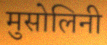
मुसोलिनी